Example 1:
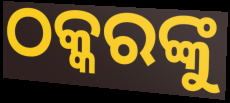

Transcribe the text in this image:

ଠକ୍କରଙ୍କୁ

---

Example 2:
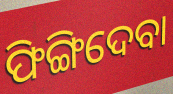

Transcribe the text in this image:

ଫିଙ୍ଗିଦେବା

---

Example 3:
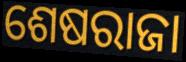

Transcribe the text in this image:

ଶେଷରାଜା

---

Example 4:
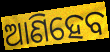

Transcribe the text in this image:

ଆଣିହେବ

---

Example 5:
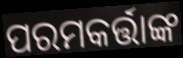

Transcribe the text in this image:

ପରମକର୍ତ୍ତାଙ୍କ